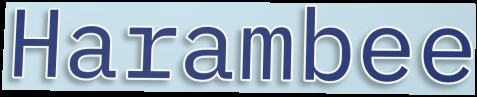
Harambee